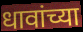
धावांच्या